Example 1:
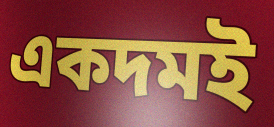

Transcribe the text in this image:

একদমই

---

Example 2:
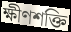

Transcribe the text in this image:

ক্ষীণশক্তি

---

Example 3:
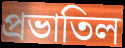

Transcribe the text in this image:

প্রভাতিল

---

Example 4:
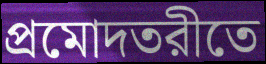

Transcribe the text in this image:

প্রমোদতরীতে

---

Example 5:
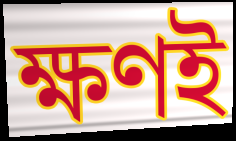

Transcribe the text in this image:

ক্ষণই